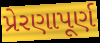
પ્રેરણાપૂર્ણ